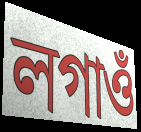
লগাওঁ